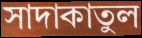
সাদাকাতুল